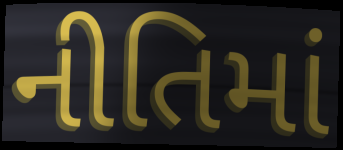
નીતિમાં